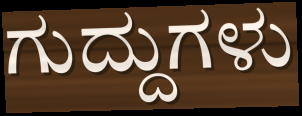
ಗುದ್ದುಗಳು